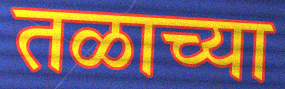
तळाच्या